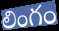
లింగం